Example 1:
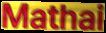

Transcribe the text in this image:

Mathai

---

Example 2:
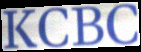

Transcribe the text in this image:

KCBC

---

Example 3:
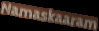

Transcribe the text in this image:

Namaskaaram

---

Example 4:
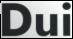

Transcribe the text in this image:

Dui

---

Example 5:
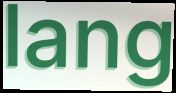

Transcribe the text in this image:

lang